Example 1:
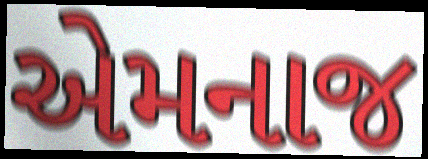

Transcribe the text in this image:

એમનાજ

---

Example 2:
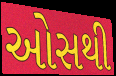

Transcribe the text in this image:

ઓસથી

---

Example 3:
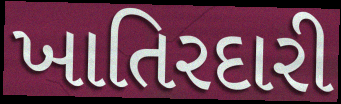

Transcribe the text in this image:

ખાતિરદારી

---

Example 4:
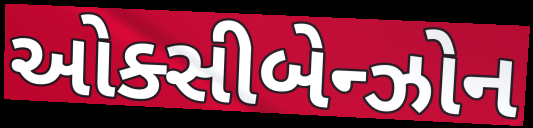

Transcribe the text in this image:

ઓક્સીબેન્ઝોન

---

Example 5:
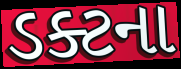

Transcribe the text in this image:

ડક્ટના